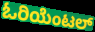
ಓರಿಯೆಂಟಲ್